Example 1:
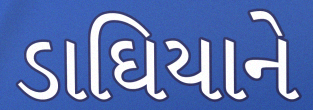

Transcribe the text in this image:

ડાઘિયાને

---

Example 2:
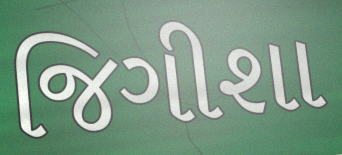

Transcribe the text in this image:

જિગીશા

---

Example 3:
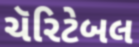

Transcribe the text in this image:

ચૅરિટેબલ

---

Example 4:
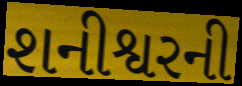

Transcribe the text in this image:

શનીશ્વરની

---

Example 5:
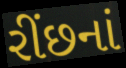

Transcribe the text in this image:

રીંછનાં